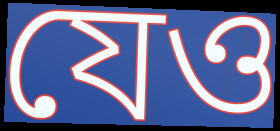
যেও